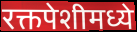
रक्तपेशीमध्ये